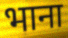
भाना